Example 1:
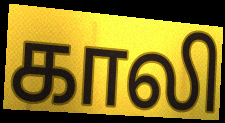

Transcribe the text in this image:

காலி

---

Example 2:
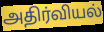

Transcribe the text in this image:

அதிர்வியல்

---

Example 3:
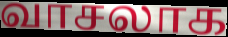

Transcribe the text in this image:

வாசலாக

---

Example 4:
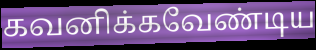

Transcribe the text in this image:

கவனிக்கவேண்டிய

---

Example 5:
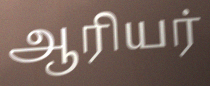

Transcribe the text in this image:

ஆரியர்